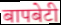
बापबेटी